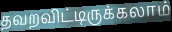
தவறவிட்டிருக்கலாம்